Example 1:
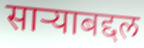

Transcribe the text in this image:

साऱ्याबद्दल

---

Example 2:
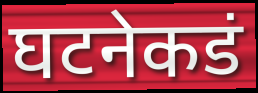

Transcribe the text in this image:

घटनेकडं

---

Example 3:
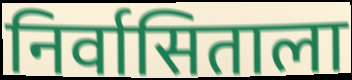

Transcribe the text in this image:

निर्वासिताला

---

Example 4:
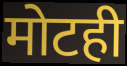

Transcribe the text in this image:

मोटही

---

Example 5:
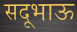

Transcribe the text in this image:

सदूभाऊ